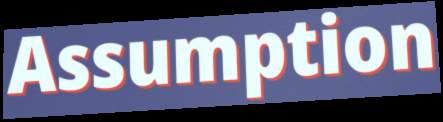
Assumption